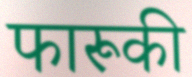
फारूकी